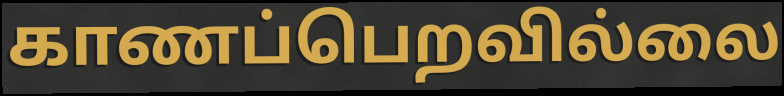
காணப்பெறவில்லை